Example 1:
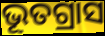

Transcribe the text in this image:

ଭୂତଗ୍ରାସ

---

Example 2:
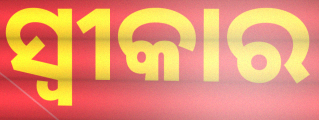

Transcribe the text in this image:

ସ୍ବୀକାର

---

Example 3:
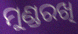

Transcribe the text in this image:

ମୁଣ୍ଡରଖି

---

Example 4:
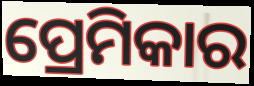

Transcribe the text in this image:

ପ୍ରେମିକାର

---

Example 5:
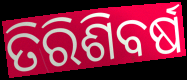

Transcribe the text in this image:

ତିରିଶିବର୍ଷ